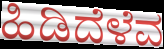
ಹಿಡಿದೆಳೆವ